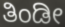
ತಿಂಡೀ